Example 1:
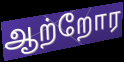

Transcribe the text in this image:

ஆற்றோர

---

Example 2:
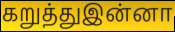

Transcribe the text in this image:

கறுத்துஇன்னா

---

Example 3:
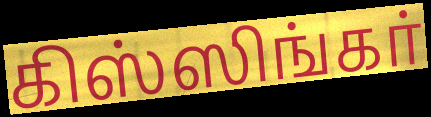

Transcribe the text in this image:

கிஸ்ஸிங்கர்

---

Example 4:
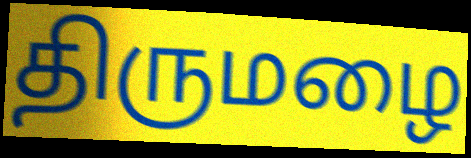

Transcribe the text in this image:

திருமழை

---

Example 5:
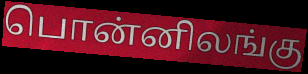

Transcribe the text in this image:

பொன்னிலங்கு